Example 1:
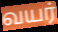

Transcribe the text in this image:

வயர்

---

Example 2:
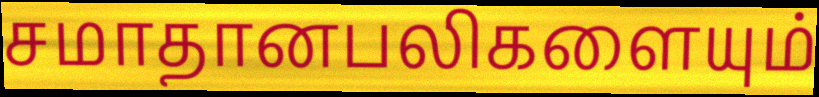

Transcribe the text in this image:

சமாதானபலிகளையும்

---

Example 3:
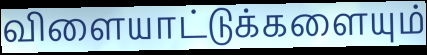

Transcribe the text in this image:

விளையாட்டுக்களையும்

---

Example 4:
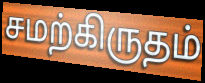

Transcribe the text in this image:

சமற்கிருதம்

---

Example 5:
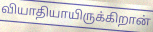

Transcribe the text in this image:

வியாதியாயிருக்கிறான்